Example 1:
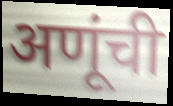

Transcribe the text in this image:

अणूंची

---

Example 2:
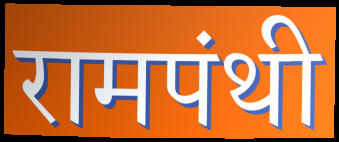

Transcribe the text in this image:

रामपंथी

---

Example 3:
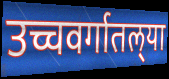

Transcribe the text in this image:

उच्चवर्गातल्या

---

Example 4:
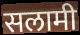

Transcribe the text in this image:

सलामी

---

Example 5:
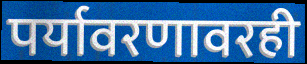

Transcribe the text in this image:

पर्यावरणावरही